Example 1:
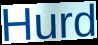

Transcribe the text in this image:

Hurd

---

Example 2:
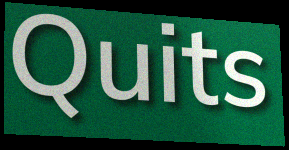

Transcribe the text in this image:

Quits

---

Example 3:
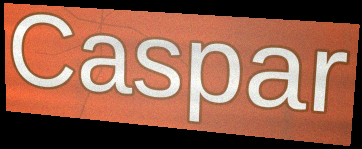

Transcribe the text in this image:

Caspar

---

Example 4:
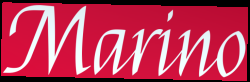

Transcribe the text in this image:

Marino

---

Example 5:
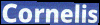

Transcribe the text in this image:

Cornelis